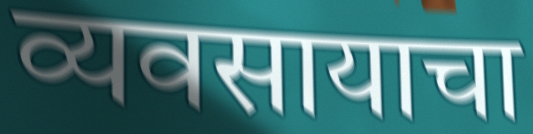
व्यवसायाचा